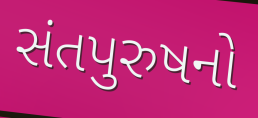
સંતપુરુષનો